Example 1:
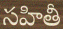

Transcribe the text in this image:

సహితీ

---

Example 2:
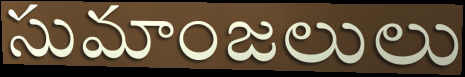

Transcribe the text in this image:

సుమాంజలులు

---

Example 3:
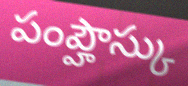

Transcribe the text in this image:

పంప్హౌస్కు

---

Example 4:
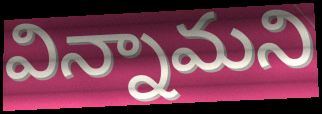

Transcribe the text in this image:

విన్నామని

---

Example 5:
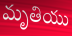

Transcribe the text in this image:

మృతియు